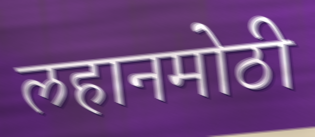
लहानमोठी